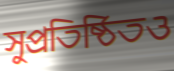
সুপ্রতিষ্ঠিতও